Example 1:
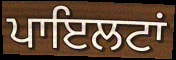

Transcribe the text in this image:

ਪਾਇਲਟਾਂ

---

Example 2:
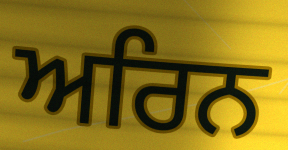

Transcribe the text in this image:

ਅਰਿਨ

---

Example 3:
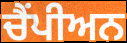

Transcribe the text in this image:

ਚੈਂਪੀਅਨ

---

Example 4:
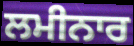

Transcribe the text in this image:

ਲਮੀਨਾਰ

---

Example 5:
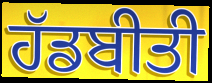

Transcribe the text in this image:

ਹੱਡਬੀਤੀ